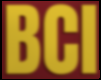
BCl